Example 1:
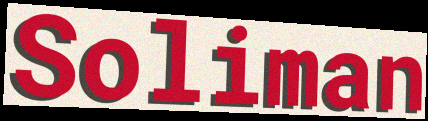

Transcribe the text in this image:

Soliman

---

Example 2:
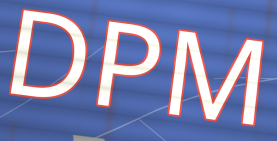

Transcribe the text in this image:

DPM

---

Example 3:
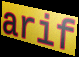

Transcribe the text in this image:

arif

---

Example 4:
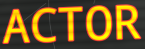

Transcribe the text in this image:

ACTOR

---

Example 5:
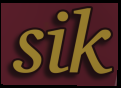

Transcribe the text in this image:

sik